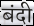
बंदी